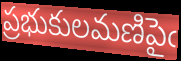
ప్రభుకులమణిపైఁ